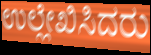
ಉಲ್ಲೇಖಿಸಿದರು